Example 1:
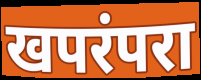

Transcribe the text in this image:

खपरंपरा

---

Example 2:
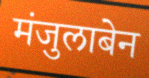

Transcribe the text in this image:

मंजुलाबेन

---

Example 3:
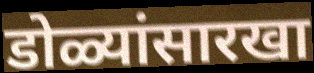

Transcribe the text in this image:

डोळ्यांसारखा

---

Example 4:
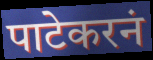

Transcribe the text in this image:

पाटेकरनं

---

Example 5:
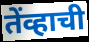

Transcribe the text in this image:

तेंव्हाची